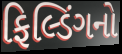
ફિલ્ડિંગનો